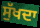
ਸੁੱਖਦਾ